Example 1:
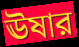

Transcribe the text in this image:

ঊষার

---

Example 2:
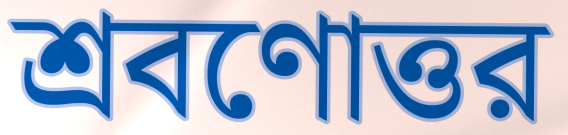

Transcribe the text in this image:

শ্রবণোত্তর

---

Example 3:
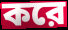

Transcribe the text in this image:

করে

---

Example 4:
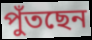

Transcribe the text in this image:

পুঁতছেন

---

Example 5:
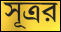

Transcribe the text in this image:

সূত্রর